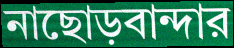
নাছোড়বান্দার